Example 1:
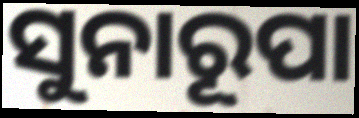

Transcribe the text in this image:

ସୁନାରୂପା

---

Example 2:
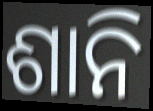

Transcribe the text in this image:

ଶାନି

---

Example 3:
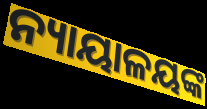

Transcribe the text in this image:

ନ୍ୟାୟାଳୟଙ୍କ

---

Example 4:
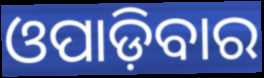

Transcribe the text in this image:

ଓପାଡ଼ିବାର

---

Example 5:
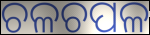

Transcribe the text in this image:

ଚଳଚପଳ